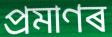
প্ৰমাণৰ